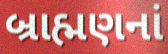
બ્રાહ્મણનાં